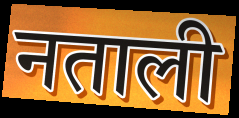
नताली